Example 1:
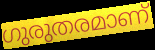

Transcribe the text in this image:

ഗുരുതരമാണ്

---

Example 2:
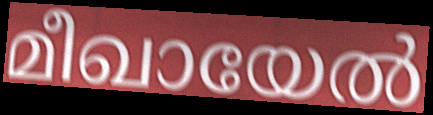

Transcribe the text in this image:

മീഖായേൽ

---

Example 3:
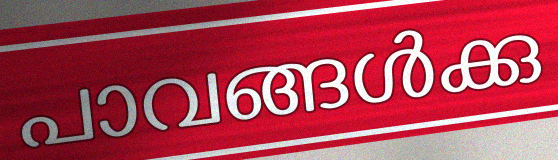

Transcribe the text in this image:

പാവങ്ങൾക്കു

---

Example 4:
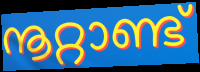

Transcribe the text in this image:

നൂറ്റാണ്ട്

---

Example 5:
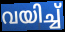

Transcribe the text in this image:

വയിച്ച്